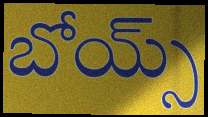
బోయ్స్